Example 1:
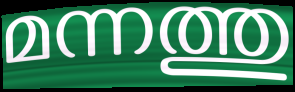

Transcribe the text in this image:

മന്നത്തു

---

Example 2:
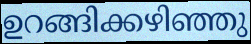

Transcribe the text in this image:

ഉറങ്ങിക്കഴിഞ്ഞു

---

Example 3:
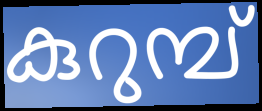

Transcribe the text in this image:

കുറുമ്പ്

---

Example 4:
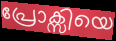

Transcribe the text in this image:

പ്രോക്സിയെ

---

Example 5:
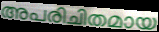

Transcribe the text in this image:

അപരിചിതമായ